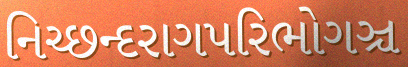
નિચ્છન્દરાગપરિભોગઞ્ચ